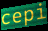
cepi